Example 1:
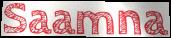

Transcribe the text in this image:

Saamna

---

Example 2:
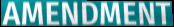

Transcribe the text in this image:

AMENDMENT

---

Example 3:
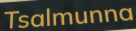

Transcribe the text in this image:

Tsalmunna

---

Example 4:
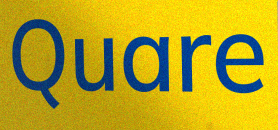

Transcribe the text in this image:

Quare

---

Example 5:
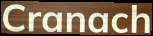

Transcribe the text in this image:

Cranach